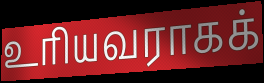
உரியவராகக்